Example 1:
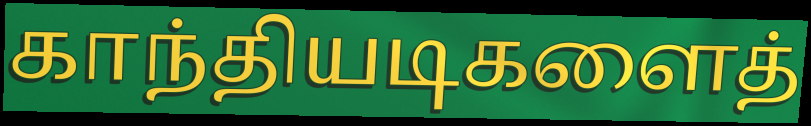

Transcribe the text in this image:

காந்தியடிகளைத்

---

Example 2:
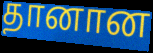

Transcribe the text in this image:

தானான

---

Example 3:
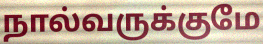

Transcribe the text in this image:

நால்வருக்குமே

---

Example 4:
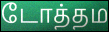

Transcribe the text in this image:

டோத்தம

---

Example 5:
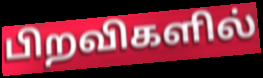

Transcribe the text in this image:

பிறவிகளில்